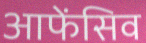
आफेंसिव